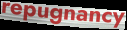
repugnancy